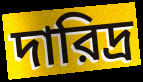
দারিদ্র